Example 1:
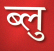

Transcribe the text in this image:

ब्लु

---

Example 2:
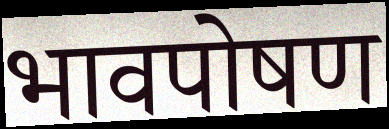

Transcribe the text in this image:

भावपोषण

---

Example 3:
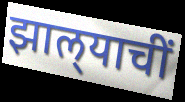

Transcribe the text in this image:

झाल्याचीं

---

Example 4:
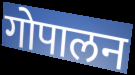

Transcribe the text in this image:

गोपालन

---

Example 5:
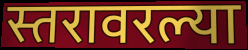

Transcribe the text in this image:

स्तरावरल्या